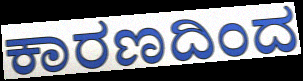
ಕಾರಣದಿಂದ